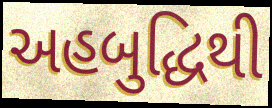
અહબુદ્ધિથી